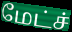
மேட்ச்